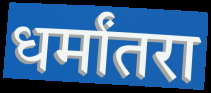
धर्मांतरा